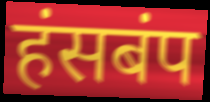
हंसबंप